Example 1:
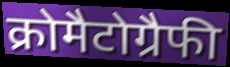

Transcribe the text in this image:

क्रोमैटोग्रैफी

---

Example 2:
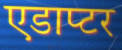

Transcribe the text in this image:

एडाप्टर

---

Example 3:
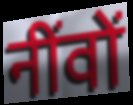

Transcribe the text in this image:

नींवों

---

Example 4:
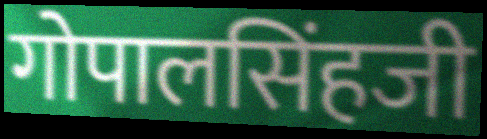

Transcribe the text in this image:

गोपालसिंहजी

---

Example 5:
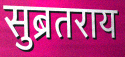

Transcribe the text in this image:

सुब्रतराय